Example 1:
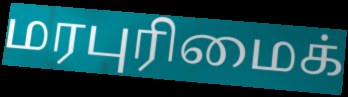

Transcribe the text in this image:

மரபுரிமைக்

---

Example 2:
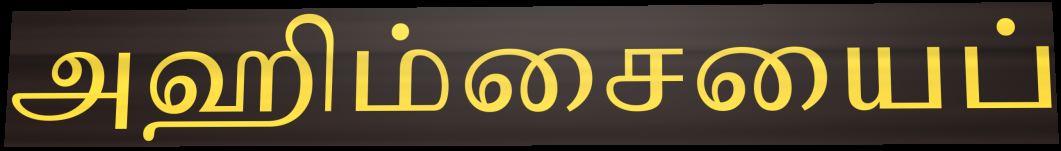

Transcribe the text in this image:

அஹிம்சையைப்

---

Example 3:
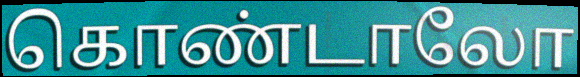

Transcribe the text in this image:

கொண்டாலோ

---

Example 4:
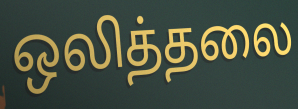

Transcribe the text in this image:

ஒலித்தலை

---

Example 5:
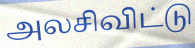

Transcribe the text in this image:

அலசிவிட்டு